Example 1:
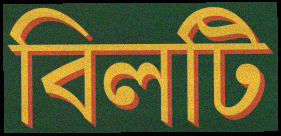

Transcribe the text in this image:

বিলটি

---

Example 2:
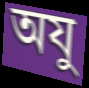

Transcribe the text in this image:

অযু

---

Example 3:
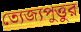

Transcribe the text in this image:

ত্যেজ্যপুত্তুর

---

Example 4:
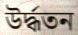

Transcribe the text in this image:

উর্দ্ধতন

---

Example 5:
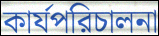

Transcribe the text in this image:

কার্যপরিচালনা